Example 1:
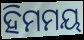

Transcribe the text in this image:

ହିମମୟ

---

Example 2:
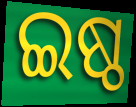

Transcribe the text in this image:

ଇଷ୍ଠ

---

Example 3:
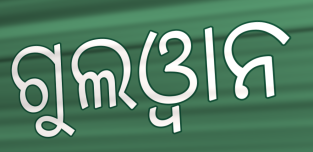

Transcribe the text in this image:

ଗୁଲଓ୍ୱାନ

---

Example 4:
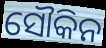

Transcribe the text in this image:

ସୌକିନ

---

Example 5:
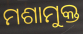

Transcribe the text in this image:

ମଶାମୁକ୍ତ